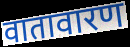
वातावारण